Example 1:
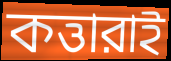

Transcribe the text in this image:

কত্তারাই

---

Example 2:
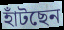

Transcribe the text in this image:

হাঁটছেন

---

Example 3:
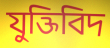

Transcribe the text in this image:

যুক্তিবিদ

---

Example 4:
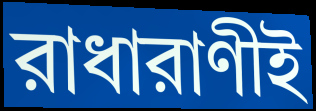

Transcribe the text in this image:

রাধারাণীই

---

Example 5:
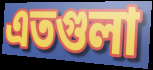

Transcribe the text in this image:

এতগুলা